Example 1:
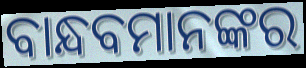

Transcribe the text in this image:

ବାନ୍ଧବମାନଙ୍କର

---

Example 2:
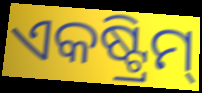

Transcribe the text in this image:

ଏକଷ୍ଟ୍ରିମ୍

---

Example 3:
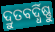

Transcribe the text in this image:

ଦ୍ରୁତବର୍ଦ୍ଧିଷ୍ଣୁ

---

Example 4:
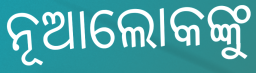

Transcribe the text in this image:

ନୂଆଲୋକଙ୍କୁ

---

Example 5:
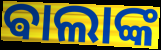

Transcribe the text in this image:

ଵାଲାଙ୍କ